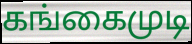
கங்கைமுடி